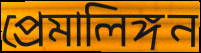
প্রেমালিঙ্গন